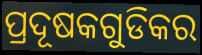
ପ୍ରଦୂଷକଗୁଡିକର